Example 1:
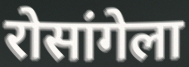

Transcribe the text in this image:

रोसांगेला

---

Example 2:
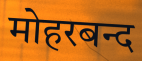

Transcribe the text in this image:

मोहरबन्द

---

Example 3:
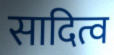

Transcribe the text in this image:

सादित्व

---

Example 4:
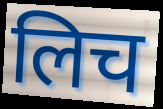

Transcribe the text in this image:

लिच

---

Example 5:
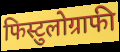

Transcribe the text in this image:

फिस्टुलोग्राफी